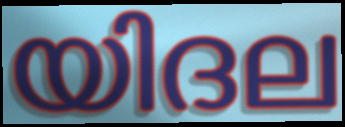
യിദല